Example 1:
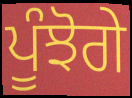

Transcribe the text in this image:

ਪੂੰਝੋਗੇ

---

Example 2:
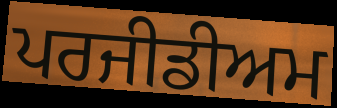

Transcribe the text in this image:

ਪਰਜੀਡੀਅਮ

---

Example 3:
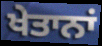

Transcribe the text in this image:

ਖੇਤਾਨਾਂ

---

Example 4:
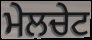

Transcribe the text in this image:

ਮੇਲਚੇਟ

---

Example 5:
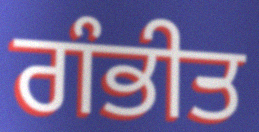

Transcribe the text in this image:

ਗੰਭੀਤ